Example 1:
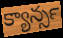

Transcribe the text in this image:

క్యాన్సర్‍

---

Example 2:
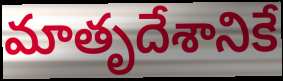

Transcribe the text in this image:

మాతృదేశానికే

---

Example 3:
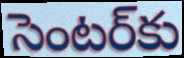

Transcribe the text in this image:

సెంటర్‌కు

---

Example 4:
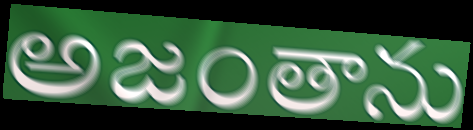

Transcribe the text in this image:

అజంతాను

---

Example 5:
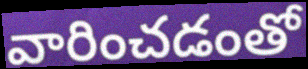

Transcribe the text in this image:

వారించడంతో